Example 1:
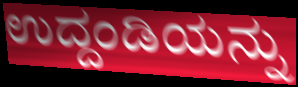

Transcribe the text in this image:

ಉದ್ದಂಡಿಯನ್ನು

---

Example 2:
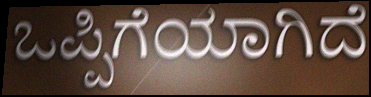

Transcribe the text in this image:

ಒಪ್ಪಿಗೆಯಾಗಿದೆ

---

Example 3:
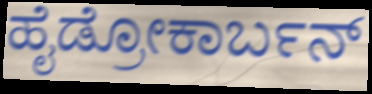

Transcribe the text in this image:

ಹೈಡ್ರೋಕಾರ್ಬನ್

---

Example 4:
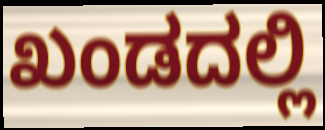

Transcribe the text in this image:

ಖಂಡದಲ್ಲಿ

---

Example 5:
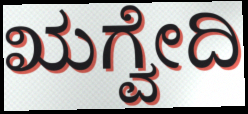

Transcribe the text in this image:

ಋಗ್ವೇದಿ